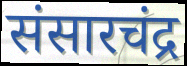
संसारचंद्र